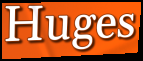
Huges